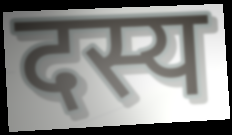
दस्य